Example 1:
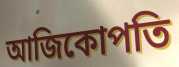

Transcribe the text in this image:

আজিকোপতি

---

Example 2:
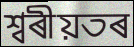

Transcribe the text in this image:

শ্বৰীয়তৰ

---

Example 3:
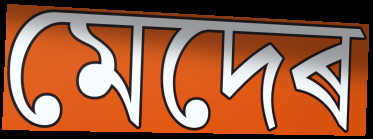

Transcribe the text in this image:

মেদেৰ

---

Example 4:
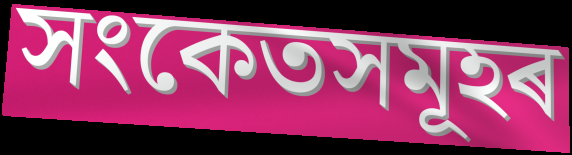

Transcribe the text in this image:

সংকেতসমূহৰ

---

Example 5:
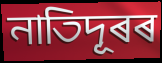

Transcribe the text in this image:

নাতিদূৰৰ